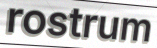
rostrum